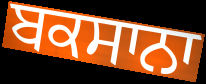
ਬਕਸਾਨਾ